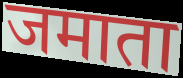
जमाता